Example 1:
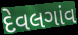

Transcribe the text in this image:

દેવલગાંવ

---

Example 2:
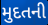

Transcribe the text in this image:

મુદતની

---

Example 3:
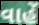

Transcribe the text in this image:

વાહેં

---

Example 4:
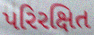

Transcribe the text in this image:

પરિરક્ષિત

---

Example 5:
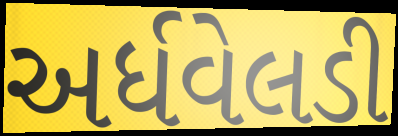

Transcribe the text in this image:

અર્ધવેલડી